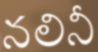
నలినీ